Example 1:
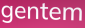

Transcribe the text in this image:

gentem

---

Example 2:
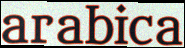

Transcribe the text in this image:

arabica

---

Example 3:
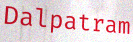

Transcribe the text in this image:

Dalpatram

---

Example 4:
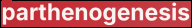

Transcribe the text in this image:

parthenogenesis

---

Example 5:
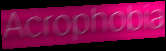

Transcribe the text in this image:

Acrophobia